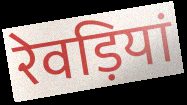
रेवड़ियां